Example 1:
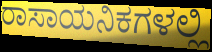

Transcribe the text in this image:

ರಾಸಾಯನಿಕಗಳಲ್ಲಿ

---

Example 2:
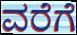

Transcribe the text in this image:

ವರೆಗೆ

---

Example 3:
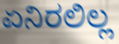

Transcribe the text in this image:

ಏನಿರಲಿಲ್ಲ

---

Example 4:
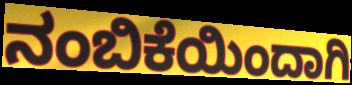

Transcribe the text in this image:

ನಂಬಿಕೆಯಿಂದಾಗಿ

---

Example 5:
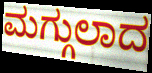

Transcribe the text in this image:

ಮಗ್ಗುಲಾದ